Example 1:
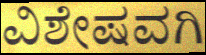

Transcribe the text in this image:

ವಿಶೇಷವಗಿ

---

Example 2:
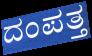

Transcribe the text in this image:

ದಂಪತ್ತ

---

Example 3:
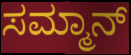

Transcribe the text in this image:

ಸಮ್ಮಾನ್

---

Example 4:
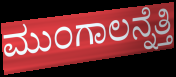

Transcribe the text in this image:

ಮುಂಗಾಲನ್ನೆತ್ತಿ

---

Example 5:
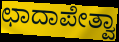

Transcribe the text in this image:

ಛಾದಾಪೇತ್ವಾ